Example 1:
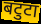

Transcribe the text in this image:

बटुटा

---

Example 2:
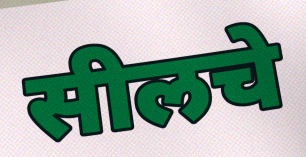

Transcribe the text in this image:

सीलचे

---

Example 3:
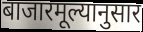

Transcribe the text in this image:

बाजारमूल्यानुसार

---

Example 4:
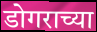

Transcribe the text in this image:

डोगराच्या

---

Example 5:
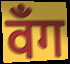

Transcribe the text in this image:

वँग